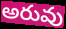
అరువు